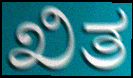
ಖಿತ